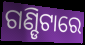
ଗଣ୍ଡିଟାରେ